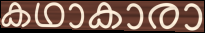
കഥാകാരാ